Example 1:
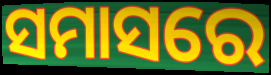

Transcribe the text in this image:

ସମାସରେ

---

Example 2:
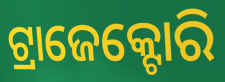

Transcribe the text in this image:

ଟ୍ରାଜେକ୍ଟୋରି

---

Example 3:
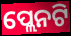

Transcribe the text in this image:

ପ୍ଲେନଟି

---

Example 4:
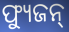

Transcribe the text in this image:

ଫ୍ୟୁଜନ୍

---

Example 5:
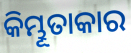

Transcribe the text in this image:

କିମ୍ଭୂତାକାର